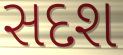
સદશ